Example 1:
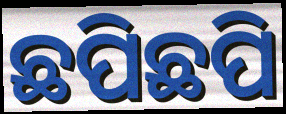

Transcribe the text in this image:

ଛପିଛପି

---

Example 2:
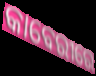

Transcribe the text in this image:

କାବେରୀରେ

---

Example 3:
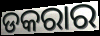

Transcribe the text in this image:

ଡକରାର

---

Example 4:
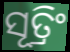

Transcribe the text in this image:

ସୂତ୍ରିଂ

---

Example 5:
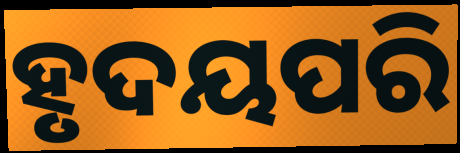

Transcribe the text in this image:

ହୃଦୟପରି